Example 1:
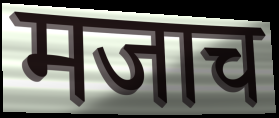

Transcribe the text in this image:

मजाच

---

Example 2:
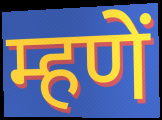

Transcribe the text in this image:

म्हणें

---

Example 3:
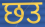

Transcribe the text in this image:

छउ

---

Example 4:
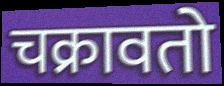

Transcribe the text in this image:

चक्रावतो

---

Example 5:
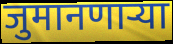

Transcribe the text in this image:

जुमानणार्‍या